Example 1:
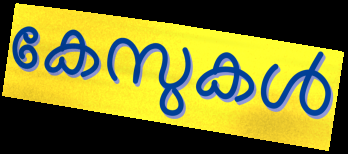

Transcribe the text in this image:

കേസുകൾ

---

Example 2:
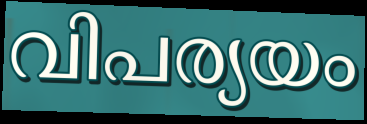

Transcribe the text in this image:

വിപര്യയം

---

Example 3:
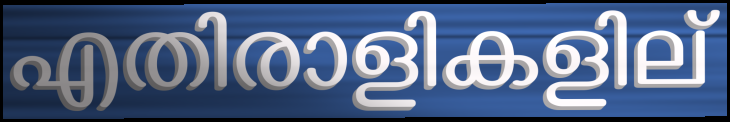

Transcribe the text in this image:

എതിരാളികളില്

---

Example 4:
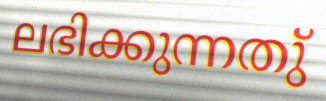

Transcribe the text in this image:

ലഭിക്കുന്നതു്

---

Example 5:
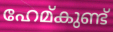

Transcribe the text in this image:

ഹേമ്കുണ്ട്